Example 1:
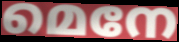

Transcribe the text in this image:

മെനേ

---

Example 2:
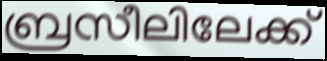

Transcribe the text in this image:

ബ്രസീലിലേക്ക്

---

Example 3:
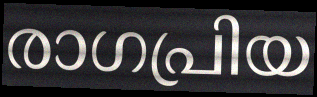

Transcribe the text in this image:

രാഗപ്രിയ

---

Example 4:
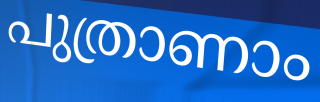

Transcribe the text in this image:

പുത്രാണാം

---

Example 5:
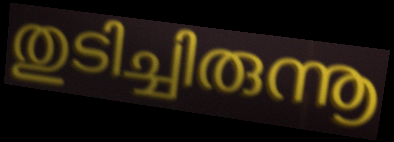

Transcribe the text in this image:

തുടിച്ചിരുന്നൂ